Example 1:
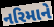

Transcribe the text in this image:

નરિમાને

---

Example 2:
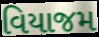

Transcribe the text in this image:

વિયાજમ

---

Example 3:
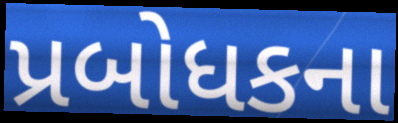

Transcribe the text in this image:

પ્રબોધકના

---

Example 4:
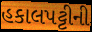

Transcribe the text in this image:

હકાલપટ્ટીની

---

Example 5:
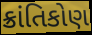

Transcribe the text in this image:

ક્રાંતિકોણ